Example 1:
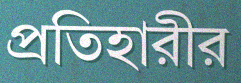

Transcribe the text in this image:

প্রতিহারীর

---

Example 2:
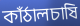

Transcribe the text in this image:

কাঁঠালচাষি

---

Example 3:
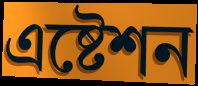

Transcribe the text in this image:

এষ্টেশন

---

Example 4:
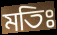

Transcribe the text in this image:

মতিঃ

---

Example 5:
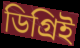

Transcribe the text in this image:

ডিগ্রিই